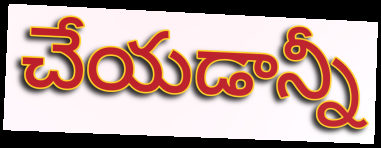
చేయడాన్నీ